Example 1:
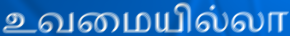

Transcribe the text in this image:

உவமையில்லா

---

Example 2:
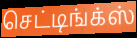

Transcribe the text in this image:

செட்டிங்க்ஸ்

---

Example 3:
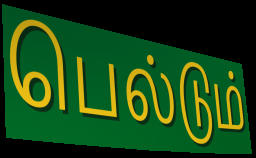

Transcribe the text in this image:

பெல்டும்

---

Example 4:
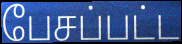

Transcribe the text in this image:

பேசப்பட்ட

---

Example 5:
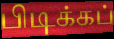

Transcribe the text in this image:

பிடிக்கப்